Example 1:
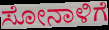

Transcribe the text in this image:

ಸೋನಾಳಿಗೆ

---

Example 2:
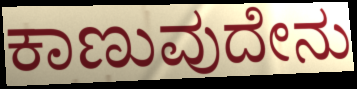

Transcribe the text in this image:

ಕಾಣುವುದೇನು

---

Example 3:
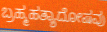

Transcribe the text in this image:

ಬ್ರಹ್ಮಹತ್ಯಾದೋಷವು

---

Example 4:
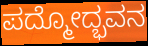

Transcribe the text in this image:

ಪದ್ಮೋದ್ಭವನ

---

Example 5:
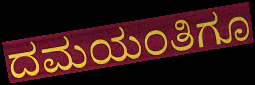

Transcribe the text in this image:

ದಮಯಂತಿಗೂ